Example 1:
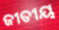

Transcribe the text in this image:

ଜୀତୀୟ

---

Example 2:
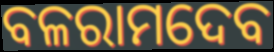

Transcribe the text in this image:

ବଳରାମଦେବ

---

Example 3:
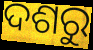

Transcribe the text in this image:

ଦଶରୁ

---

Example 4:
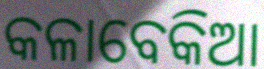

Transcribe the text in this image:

କଳାବେକିଆ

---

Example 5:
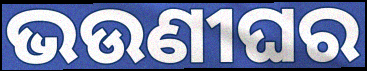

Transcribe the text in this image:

ଭଉଣୀଘର